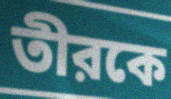
তীরকে